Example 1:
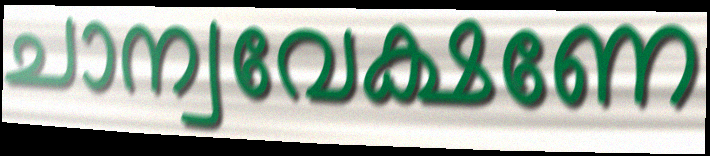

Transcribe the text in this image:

ചാന്വവേക്ഷണേ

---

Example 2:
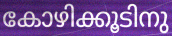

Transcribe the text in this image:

കോഴിക്കൂടിനു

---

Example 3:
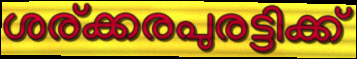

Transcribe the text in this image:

ശര്ക്കരപുരട്ടിക്ക്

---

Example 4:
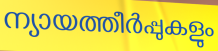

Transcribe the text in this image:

ന്യായത്തീർപ്പുകളും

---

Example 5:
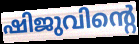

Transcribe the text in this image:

ഷിജുവിന്റെ